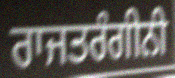
ਰਾਜਤਰੰਗੀਨੀ